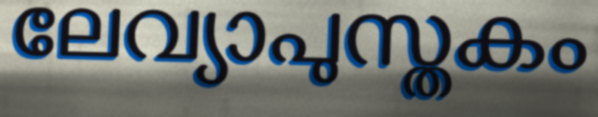
ലേവ്യാപുസ്തകം